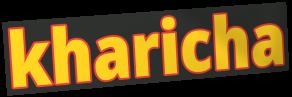
kharicha